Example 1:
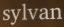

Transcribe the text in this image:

sylvan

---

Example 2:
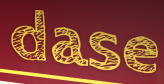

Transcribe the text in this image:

dase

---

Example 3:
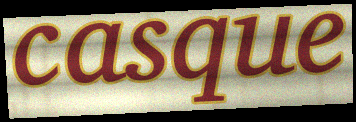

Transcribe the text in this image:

casque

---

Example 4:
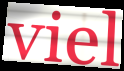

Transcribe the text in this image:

viel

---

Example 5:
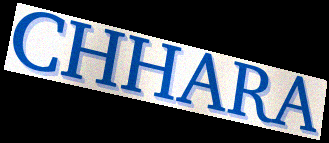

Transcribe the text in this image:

CHHARA